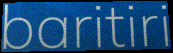
baritiri